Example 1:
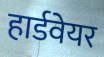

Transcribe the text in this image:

हार्डवेयर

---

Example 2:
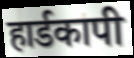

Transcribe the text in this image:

हार्डकापी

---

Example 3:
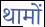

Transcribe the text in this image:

थामों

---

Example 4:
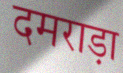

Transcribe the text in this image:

दमराड़ा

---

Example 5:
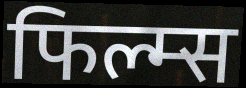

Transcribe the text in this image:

फिल्म्स